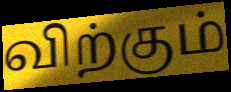
விற்கும்